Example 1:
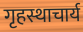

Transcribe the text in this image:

गृहस्थाचार्य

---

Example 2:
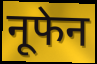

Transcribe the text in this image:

नूफेन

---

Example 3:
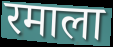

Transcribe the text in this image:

रमाला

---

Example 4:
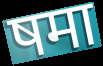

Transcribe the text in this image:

षमा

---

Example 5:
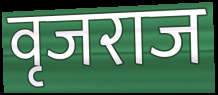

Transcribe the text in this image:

वृजराज